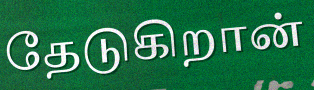
தேடுகிறான்